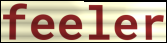
feeler